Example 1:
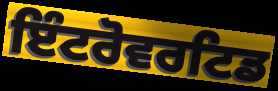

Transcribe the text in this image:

ਇੰਟਰੋਵਰਟਿਡ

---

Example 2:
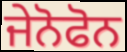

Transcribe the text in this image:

ਜੇਨੋਫੋਨ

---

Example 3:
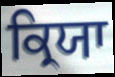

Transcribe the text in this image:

ਕ੍ਰਿਯਾ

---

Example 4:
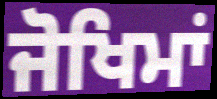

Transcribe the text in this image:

ਜੋਖਿਮਾਂ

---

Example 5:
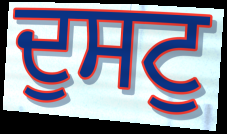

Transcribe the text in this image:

ਦੁਸਟੁ